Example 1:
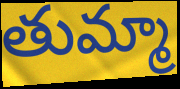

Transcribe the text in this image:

తుమ్మా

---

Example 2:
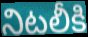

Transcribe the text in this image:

నిటలీకి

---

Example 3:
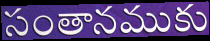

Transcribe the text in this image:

సంతానముకు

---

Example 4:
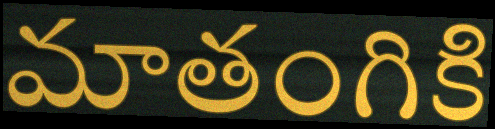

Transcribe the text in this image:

మాతంగికి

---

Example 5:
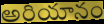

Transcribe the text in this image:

అరియానం